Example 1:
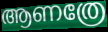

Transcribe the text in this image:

ആണത്രേ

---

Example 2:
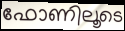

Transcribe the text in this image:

ഫോണിലൂടെ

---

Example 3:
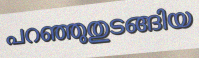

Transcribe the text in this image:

പറഞ്ഞുതുടങ്ങിയ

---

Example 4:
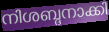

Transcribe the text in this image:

നിശബ്ദനാക്കി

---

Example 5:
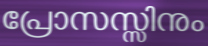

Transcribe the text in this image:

പ്രോസസ്സിനും